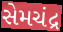
સેમચંદ્ર